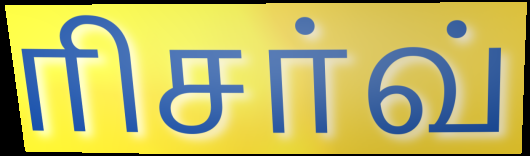
ரிசர்வ்